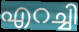
എറച്ചി